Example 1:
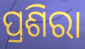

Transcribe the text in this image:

ପ୍ରଶିରା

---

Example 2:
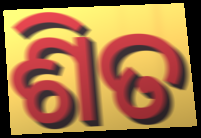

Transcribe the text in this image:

ଶିତ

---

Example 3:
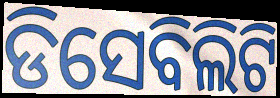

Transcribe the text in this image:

ଡିସେବିଲିଟି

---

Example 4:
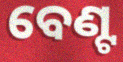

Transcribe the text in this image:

ବେଣ୍ଟ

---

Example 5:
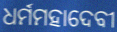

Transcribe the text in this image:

ଧର୍ମମହାଦେବୀ